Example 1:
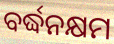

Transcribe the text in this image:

ବର୍ଦ୍ଧନକ୍ଷମ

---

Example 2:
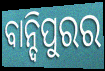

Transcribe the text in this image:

ବାନ୍ଦିପୁରର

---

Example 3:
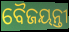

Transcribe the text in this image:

ବୈଜୟନ୍ତୀ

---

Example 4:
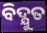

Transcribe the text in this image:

ବିଦ୍ଯୁତ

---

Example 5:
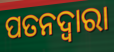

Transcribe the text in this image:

ପତନଦ୍ୱାରା